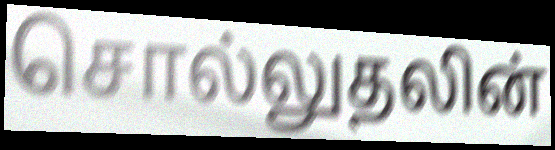
சொல்லுதலின்